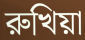
রুখিয়া